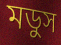
মডুস